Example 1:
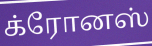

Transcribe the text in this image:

க்ரோனஸ்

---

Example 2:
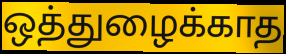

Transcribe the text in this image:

ஒத்துழைக்காத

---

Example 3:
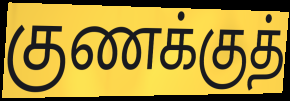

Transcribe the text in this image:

குணக்குத்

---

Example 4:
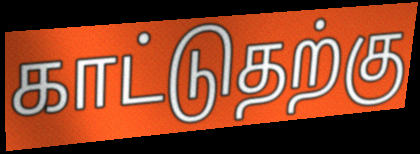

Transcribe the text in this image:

காட்டுதற்கு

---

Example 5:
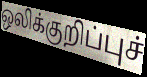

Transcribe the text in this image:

ஒலிக்குறிப்புச்